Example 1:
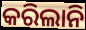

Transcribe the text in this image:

କରିଲାନି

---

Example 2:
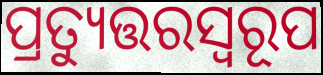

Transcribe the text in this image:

ପ୍ରତ୍ୟୁତ୍ତରସ୍ଵରୂପ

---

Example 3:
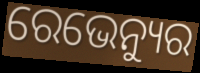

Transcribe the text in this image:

ରେଭେନ୍ୟୁର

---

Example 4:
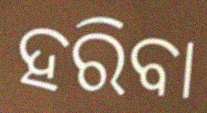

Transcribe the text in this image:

ହରିବା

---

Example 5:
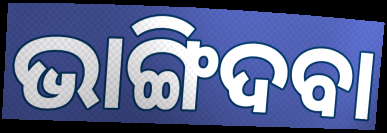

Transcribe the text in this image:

ଭାଙ୍ଗିଦବା